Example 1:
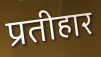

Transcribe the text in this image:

प्रतीहार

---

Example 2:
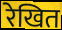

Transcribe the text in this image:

रेखित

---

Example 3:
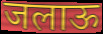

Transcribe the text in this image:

जलाऊ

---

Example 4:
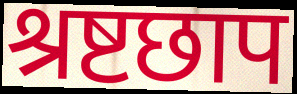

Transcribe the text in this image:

श्रष्टछाप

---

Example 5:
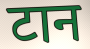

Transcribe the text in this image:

टान